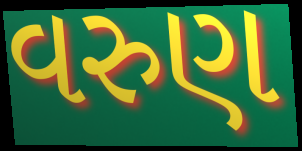
વરુણ